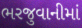
ભરજુવાનીમાં